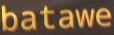
batawe